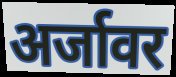
अर्जावर